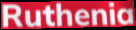
Ruthenia